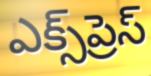
ఎక్స్‌ప్రెస్